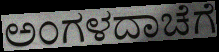
ಅಂಗಳದಾಚೆಗೆ